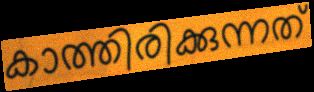
കാത്തിരിക്കുന്നത്